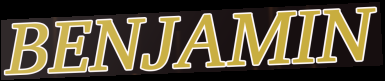
BENJAMIN